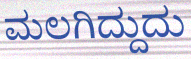
ಮಲಗಿದ್ದುದು